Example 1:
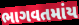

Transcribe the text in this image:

ભાગવતમાંય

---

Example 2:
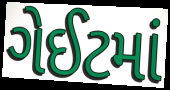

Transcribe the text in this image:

ગેઈટમાં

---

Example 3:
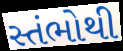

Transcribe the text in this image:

સ્તંભોથી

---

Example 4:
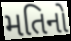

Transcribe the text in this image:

મતિનો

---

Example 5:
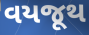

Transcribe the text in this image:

વયજૂથ